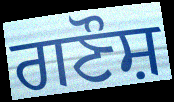
ਗਣੌਸ਼